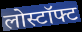
लोस्टॉफ्ट